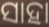
ସାହା